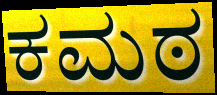
ಕಮಠ